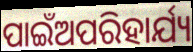
ପାଇଁଅପରିହାର୍ଯ୍ୟ